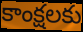
కాంక్షలకు